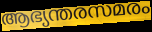
ആഭ്യന്തരസമരം